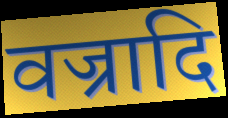
वज्रादि